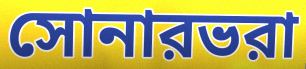
সোনারভরা